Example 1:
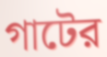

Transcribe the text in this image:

গাটের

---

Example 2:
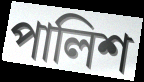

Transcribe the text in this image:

পালিশ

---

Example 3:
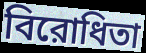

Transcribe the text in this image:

বিরোধিতা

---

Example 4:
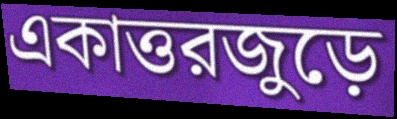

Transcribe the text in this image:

একাত্তরজুড়ে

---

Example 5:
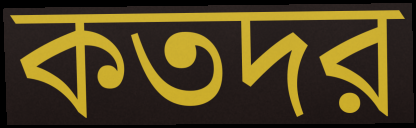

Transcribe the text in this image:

কতদর